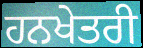
ਹਨਖੇਤਰੀ